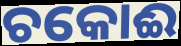
ଚକୋଈ